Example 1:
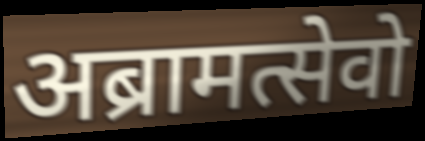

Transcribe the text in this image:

अब्रामत्सेवो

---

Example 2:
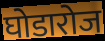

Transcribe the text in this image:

घोडारोज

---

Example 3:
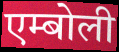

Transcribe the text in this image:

एम्बोली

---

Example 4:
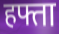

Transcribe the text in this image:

हफ्ता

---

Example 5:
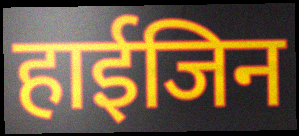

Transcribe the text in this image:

हाईजिन